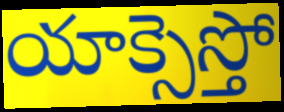
యాక్సెస్తో